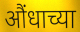
औंधाच्या